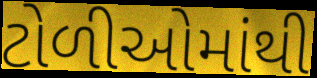
ટોળીઓમાંથી